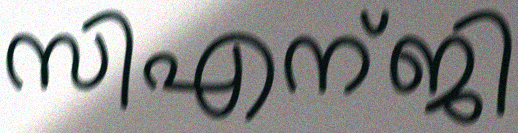
സിഎന്ജി